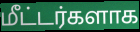
மீட்டர்களாக